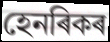
হেনৰিকৰ